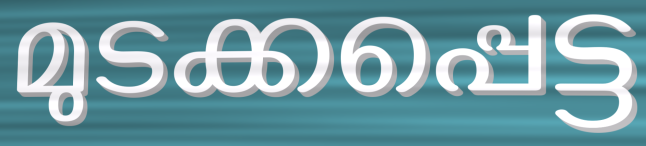
മുടക്കപ്പെട്ട